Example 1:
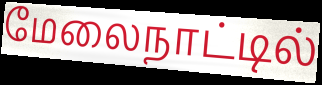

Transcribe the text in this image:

மேலைநாட்டில்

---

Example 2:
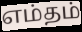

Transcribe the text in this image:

எம்தம்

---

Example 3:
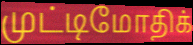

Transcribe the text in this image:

முட்டிமோதிக்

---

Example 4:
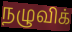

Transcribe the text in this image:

நழுவிக்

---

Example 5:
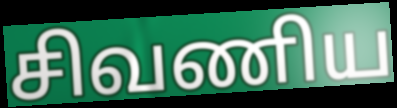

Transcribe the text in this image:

சிவணிய